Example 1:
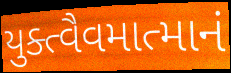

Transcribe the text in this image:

યુક્ત્વૈવમાત્માનં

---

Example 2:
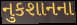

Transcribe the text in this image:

નુકશાનના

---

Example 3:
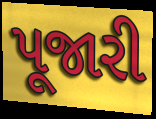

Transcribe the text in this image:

પૂજારી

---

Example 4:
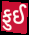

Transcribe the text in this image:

ફુઈ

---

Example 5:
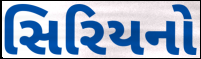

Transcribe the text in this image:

સિરિયનો